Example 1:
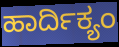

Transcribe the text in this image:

ಹಾರ್ದಿಕ್ಯಂ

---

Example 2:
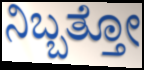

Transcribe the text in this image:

ನಿಬ್ಬತ್ತೋ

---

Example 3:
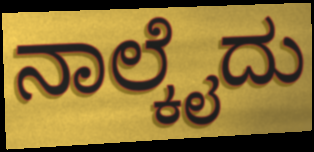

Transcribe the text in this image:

ನಾಲ್ಕೈದು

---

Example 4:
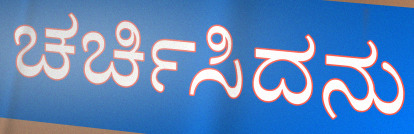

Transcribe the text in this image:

ಚರ್ಚಿಸಿದನು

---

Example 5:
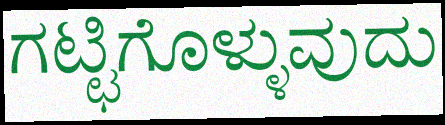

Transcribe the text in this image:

ಗಟ್ಟಿಗೊಳ್ಳುವುದು